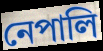
নেপালি